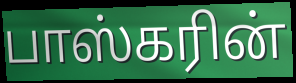
பாஸ்கரின்